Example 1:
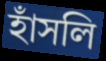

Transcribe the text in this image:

হাঁসলি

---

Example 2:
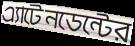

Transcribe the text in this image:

এ্যাটেনডেন্টের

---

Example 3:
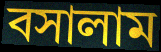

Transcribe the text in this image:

বসালাম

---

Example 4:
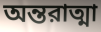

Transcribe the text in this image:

অন্তরাত্মা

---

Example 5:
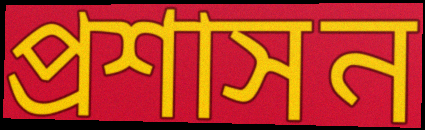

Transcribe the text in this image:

প্রশাসন